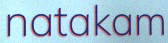
natakam